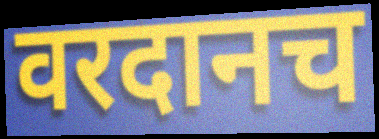
वरदानच